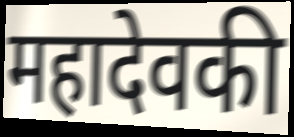
महादेवकी